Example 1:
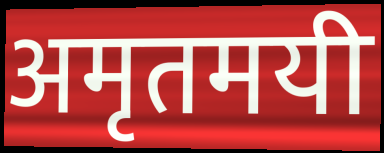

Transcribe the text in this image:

अमृतमयी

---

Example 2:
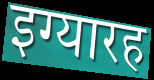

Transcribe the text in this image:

इग्यारह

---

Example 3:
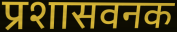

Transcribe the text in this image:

प्रशासवनक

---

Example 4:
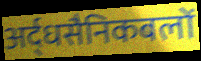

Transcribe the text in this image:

अर्द्धसैनिकबलों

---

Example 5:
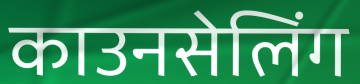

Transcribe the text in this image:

काउनसेलिंग